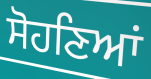
ਸੋਹਣਿਆਂ